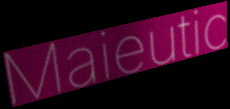
Maieutic